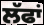
ਲੱਫਾਂ